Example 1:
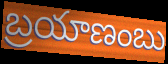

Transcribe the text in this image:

బ్రయాణంబు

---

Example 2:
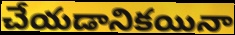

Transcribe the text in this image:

చేయడానికయినా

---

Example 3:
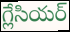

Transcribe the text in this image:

గ్లేసియర్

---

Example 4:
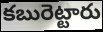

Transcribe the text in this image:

కబురెట్టారు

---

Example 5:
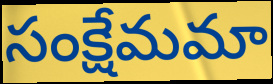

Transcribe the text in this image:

సంక్షేమమా